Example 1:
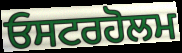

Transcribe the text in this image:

ਓਸਟਰਹੋਲਮ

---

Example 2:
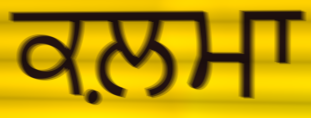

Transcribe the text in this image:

ਕਲ਼ਮਾ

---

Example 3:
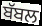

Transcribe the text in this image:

ਬੱਬਲ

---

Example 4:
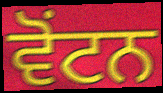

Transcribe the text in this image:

ਵੋਂਟਨ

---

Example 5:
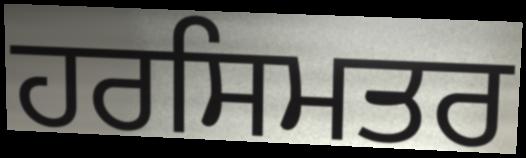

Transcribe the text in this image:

ਹਰਸਿਮਤਰ